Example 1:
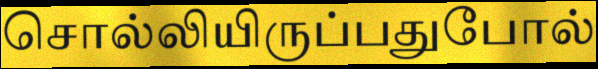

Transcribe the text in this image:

சொல்லியிருப்பதுபோல்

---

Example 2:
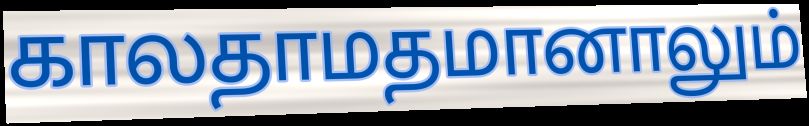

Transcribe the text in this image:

காலதாமதமானாலும்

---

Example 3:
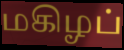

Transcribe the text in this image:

மகிழப்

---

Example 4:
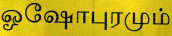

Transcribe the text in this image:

ஓஷோபுரமும்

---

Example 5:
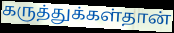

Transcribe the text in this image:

கருத்துக்கள்தான்